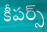
కీపర్స్